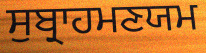
ਸੁਬ੍ਰਾਹਮਣਯਮ